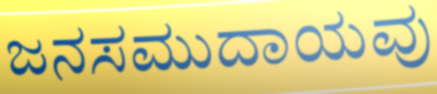
ಜನಸಮುದಾಯವು